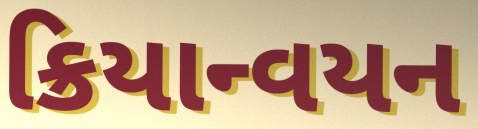
ક્રિયાન્વયન